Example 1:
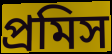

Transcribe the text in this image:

প্রমিস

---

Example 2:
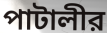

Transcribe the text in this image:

পাটালীর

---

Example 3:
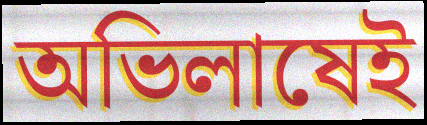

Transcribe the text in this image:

অভিলাষেই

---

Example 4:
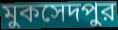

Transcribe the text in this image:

মুকসেদপুর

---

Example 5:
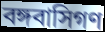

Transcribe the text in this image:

বঙ্গবাসিগণ